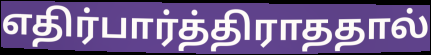
எதிர்பார்த்திராததால்